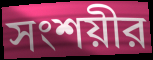
সংশয়ীর